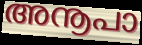
അനൂപാ